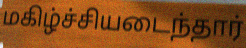
மகிழ்ச்சியடைந்தார்